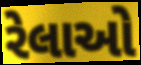
રેલાઓ